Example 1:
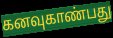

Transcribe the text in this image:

கனவுகாண்பது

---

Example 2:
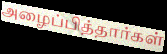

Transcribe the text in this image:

அழைப்பித்தார்கள்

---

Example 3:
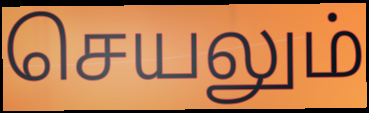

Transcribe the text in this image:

செயலும்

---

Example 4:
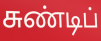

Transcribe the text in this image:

சுண்டிப்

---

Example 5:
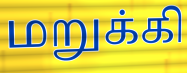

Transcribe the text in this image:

மறுக்கி